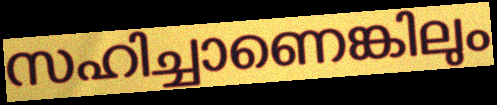
സഹിച്ചാണെങ്കിലും